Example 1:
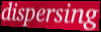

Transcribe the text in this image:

dispersing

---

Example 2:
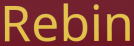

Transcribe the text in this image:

Rebin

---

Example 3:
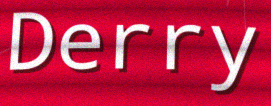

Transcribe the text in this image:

Derry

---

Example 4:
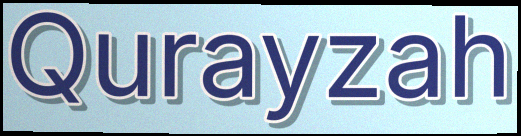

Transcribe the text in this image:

Qurayzah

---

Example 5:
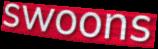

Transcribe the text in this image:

swoons